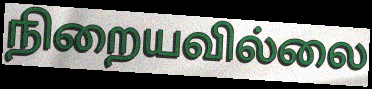
நிறையவில்லை